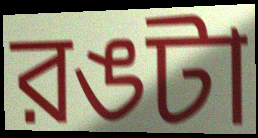
রঙটা